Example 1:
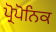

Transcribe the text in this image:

ਪ੍ਰੋਪੋਨਿਕ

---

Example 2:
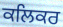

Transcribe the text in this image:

ਕਲਿਕਰ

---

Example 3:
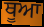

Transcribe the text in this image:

ਥੂਆ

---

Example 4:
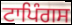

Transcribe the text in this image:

ਟਾਪਿੰਗਸ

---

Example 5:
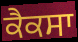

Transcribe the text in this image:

ਕੈਕਸਾ